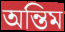
অন্তিম